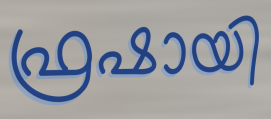
ഫ്രഷായി